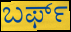
ಬರ್ಫ್